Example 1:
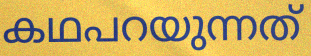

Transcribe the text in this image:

കഥപറയുന്നത്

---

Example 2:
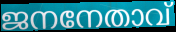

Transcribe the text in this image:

ജനനേതാവ്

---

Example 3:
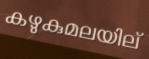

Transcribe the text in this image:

കഴുകുമലയില്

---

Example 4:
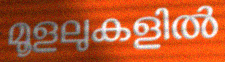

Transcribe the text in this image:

മൂളലുകളിൽ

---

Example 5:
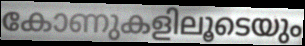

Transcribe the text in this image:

കോണുകളിലൂടെയും